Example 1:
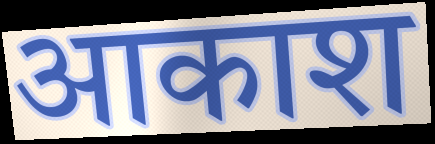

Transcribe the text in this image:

आकाश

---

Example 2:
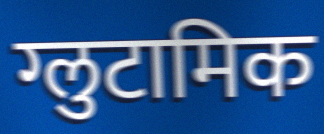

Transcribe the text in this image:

ग्लुटामिक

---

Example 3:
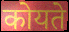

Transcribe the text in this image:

कोयते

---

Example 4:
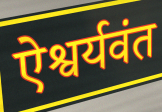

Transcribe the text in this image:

ऐश्वर्यवंत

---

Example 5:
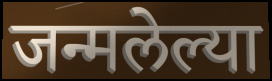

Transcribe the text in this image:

जन्मलेल्या